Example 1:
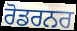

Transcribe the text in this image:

ਰੋਡਰਨਰ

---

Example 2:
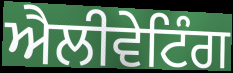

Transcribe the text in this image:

ਐਲੀਵੇਟਿੰਗ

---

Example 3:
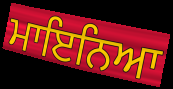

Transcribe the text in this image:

ਮਾਇਨਿਆ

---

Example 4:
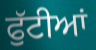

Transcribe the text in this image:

ਫੁੱਟੀਆਂ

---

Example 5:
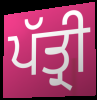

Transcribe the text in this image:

ਪੱਤ੍ਰੀ